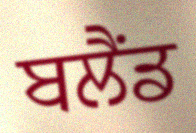
ਬਲੈਂਡ